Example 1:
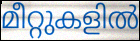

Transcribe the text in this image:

മീറ്റുകളിൽ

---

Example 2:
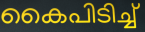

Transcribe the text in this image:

കൈപിടിച്ച്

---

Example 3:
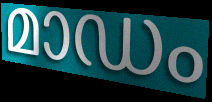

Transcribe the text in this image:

മാഡം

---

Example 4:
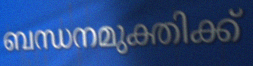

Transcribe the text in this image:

ബന്ധനമുക്തിക്ക്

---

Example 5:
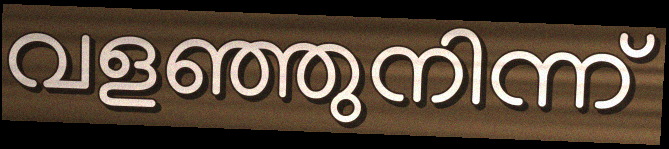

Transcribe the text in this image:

വളഞ്ഞുനിന്ന്